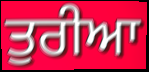
ਤੁਰੀਆ